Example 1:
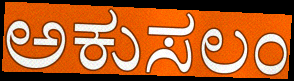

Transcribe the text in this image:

ಅಕುಸಲಂ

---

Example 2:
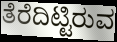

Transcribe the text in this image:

ತೆರೆದಿಟ್ಟಿರುವ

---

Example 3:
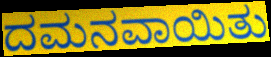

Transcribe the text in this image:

ದಮನವಾಯಿತು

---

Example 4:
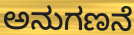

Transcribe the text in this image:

ಅನುಗಣನೆ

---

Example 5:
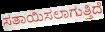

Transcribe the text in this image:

ಸತಾಯಿಸಲಾಗುತ್ತಿದೆ